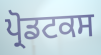
ਪ੍ਰੋਡਟਕਸ